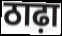
ठाढ़ा